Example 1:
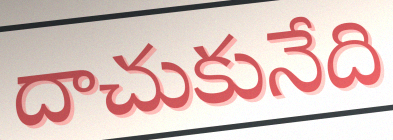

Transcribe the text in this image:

దాచుకునేది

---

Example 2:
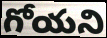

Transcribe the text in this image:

గోయని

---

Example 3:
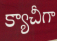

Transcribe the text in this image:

క్యాచీగా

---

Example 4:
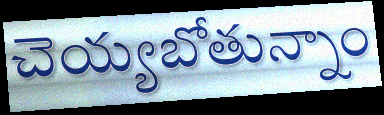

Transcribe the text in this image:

చెయ్యబోతున్నాం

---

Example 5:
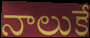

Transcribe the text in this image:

నాలుకే